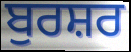
ਬੁਰਸ਼ਰ